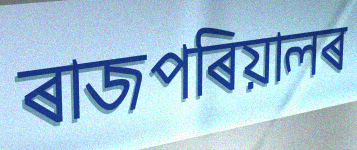
ৰাজপৰিয়ালৰ